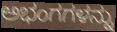
ಅಭಂಗಗಳನ್ನು